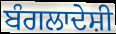
ਬੰਗਲਾਦੇਸ਼ੀ